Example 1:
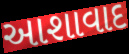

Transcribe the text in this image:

આશાવાદ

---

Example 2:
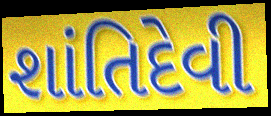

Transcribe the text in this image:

શાંતિદેવી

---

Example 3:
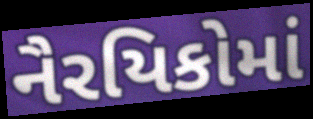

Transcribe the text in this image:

નૈરયિકોમાં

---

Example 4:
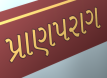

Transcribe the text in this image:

પ્રાણપરાગ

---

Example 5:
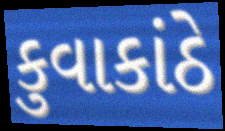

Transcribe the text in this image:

કુવાકાંઠે